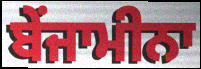
ਬੇਂਜਾਮੀਨਾ